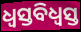
ଧ୍ୱସ୍ତବିଧ୍ୱସ୍ତ